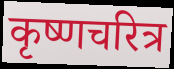
कृष्णचरित्र